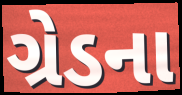
ગ્રેડના